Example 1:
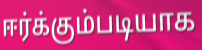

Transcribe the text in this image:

ஈர்க்கும்படியாக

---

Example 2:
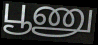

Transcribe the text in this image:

பூணு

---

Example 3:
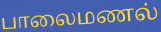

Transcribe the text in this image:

பாலைமணல்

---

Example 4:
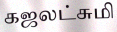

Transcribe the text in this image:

கஜலட்சுமி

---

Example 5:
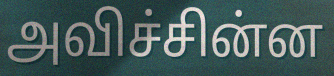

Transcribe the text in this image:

அவிச்சின்ன